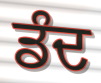
ਡੰਦ